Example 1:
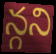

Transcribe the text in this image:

న్గని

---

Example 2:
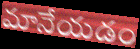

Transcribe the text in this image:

మానేయడం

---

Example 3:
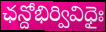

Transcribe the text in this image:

ఛన్దోభిర్వివిధైః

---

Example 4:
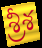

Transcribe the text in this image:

శ్రీశ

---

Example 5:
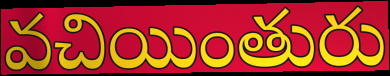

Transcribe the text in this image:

వచియింతురు